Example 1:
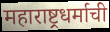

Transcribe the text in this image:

महाराष्ट्रधर्माची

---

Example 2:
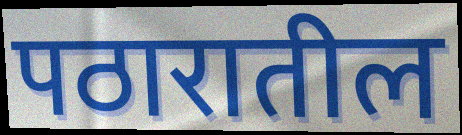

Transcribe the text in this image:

पठारातील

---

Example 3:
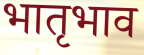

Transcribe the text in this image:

भातृभाव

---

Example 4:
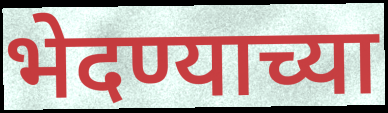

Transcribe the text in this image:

भेदण्याच्या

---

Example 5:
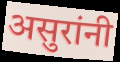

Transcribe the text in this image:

असुरांनी